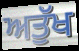
ਅਤੁੱਖ